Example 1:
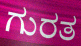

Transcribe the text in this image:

ಗುರತ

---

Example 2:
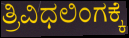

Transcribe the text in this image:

ತ್ರಿವಿಧಲಿಂಗಕ್ಕೆ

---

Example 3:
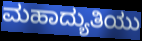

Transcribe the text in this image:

ಮಹಾದ್ಯುತಿಯು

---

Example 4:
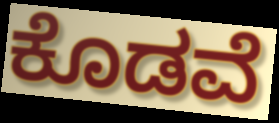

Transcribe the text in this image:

ಕೊಡವೆ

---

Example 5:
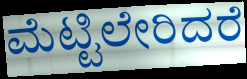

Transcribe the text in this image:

ಮೆಟ್ಟಿಲೇರಿದರೆ